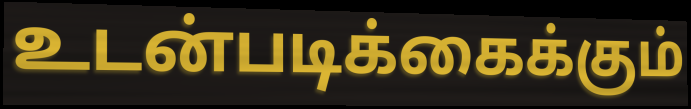
உடன்படிக்கைக்கும்